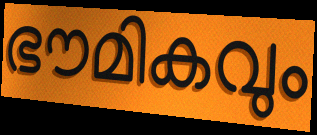
ഭൗമികവും